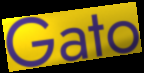
Gato